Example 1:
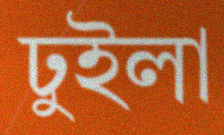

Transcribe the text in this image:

ঢুইলা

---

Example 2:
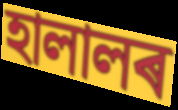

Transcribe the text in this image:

হালালৰ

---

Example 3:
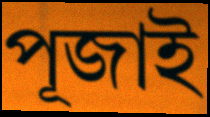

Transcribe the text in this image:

পূজাই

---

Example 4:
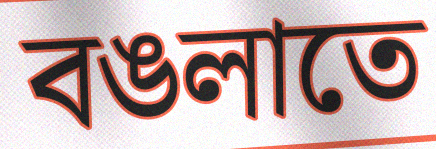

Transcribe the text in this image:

বঙলাতে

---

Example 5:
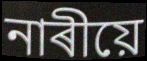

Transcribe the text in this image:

নাৰীয়ে